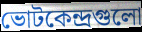
ভোটকেন্দ্রগুলো